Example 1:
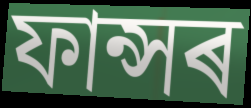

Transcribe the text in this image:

ফান্সৰ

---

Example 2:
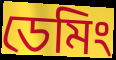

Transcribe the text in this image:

ডেমিং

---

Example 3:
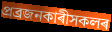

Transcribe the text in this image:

প্ৰব্ৰজনকাৰীসকলৰ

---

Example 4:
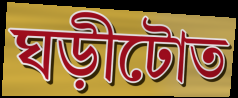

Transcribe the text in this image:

ঘড়ীটোত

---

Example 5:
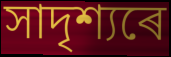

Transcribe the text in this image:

সাদৃশ্যৰে